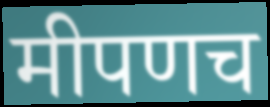
मीपणच